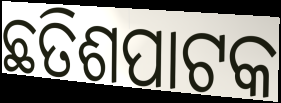
ଛତିଶପାଟକ